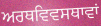
ਅਰਥਵਿਵਸਥਾਵਾਂ